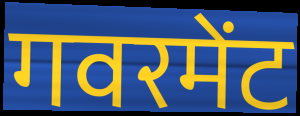
गवरमेंट